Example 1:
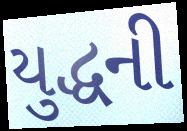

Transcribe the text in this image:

યુદ્ધની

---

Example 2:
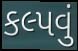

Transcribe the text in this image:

કલ્પવું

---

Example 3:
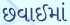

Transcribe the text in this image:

છવાઈમાં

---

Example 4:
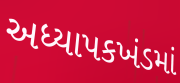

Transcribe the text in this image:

અધ્યાપકખંડમાં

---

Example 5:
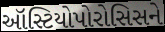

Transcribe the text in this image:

ઑસ્ટિયોપોરોસિસને